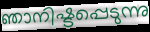
ഞാനിഷ്ടപ്പെടുന്നു